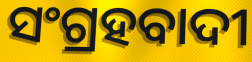
ସଂଗ୍ରହବାଦୀ